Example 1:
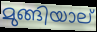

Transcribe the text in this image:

മുങ്ങിയാല്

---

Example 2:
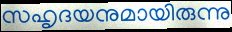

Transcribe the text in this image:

സഹൃദയനുമായിരുന്നു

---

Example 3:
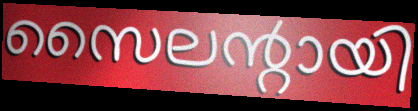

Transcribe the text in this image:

സൈലന്റായി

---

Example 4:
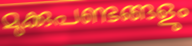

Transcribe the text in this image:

മുക്കുപണ്ടങ്ങളും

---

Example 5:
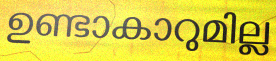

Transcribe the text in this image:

ഉണ്ടാകാറുമില്ല